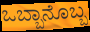
ಒಬ್ಬಾನೊಬ್ಬ